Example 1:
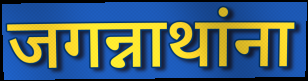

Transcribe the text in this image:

जगन्नाथांना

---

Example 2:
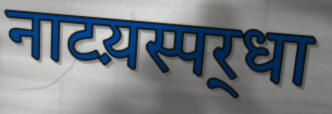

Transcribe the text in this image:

नाटय़स्पर्धा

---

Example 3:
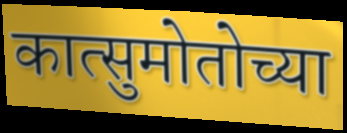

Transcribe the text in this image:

कात्सुमोतोच्या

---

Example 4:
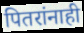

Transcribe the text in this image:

पितरांनाही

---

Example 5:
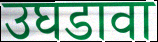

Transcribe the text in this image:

उघडावा